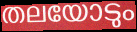
തലയോടും